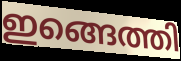
ഇങ്ങെത്തി